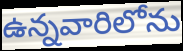
ఉన్నవారిలోను